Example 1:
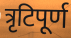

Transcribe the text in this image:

त्रृटिपूर्ण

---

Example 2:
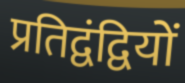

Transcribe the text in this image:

प्रतिद्वंद्वियों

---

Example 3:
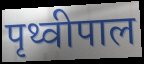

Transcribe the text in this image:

पृथ्वीपाल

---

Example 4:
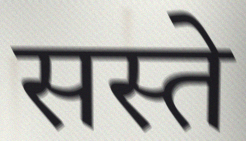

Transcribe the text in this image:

सस्‍ते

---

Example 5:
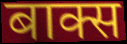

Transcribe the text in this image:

बाक्स